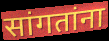
सांगतांना